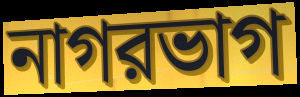
নাগরভাগ